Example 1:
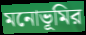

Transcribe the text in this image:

মনোভূমির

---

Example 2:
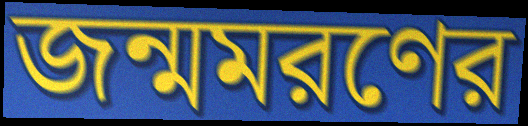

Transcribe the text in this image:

জন্মমরণের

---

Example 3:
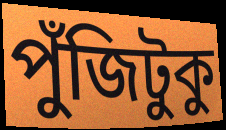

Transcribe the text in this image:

পুঁজিটুকু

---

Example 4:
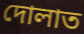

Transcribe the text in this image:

দোলাত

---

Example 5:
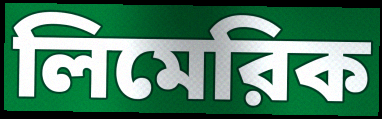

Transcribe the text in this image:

লিমেরিক